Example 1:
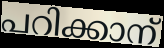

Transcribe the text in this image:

പറിക്കാന്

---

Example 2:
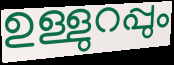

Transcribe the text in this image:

ഉള്ളുറപ്പും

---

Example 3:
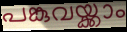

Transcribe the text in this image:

പങ്കുവയ്ക്കാം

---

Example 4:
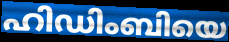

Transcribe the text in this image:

ഹിഡിംബിയെ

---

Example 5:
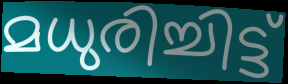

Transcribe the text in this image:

മധുരിച്ചിട്ട്